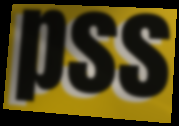
pss